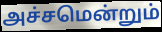
அச்சமென்றும்